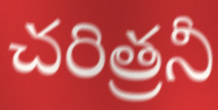
చరిత్రనీ